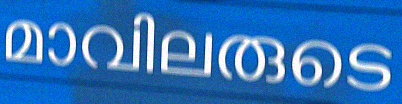
മാവിലരുടെ